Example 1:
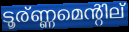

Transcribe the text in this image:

ടൂര്ണ്ണമെന്റില്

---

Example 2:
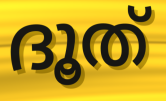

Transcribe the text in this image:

ദൂത്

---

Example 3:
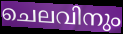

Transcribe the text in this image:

ചെലവിനും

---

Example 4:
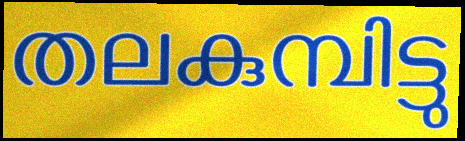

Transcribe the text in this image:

തലകുമ്പിട്ടു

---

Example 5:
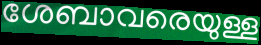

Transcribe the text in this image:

ശേബാവരെയുള്ള